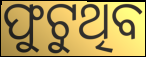
ଫୁଟୁଥିବ